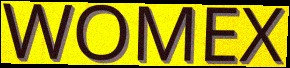
WOMEX